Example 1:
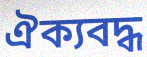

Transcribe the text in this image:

ঐক্যবদ্ধ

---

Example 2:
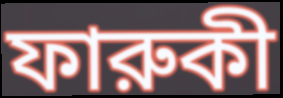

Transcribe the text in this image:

ফারুকী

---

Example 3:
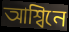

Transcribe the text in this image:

আশ্বিনে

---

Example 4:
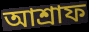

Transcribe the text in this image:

আশ্রাফ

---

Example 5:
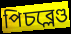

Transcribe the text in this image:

পিচব্লেণ্ড